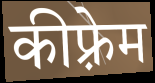
कीफ़्रेम